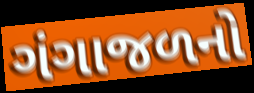
ગંગાજળનો